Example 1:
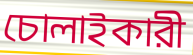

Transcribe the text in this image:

চোলাইকারী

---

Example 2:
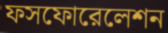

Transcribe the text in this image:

ফসফোরেলেশন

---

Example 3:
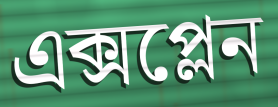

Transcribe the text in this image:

এক্সপ্লেন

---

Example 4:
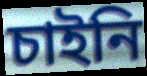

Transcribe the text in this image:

চাইনি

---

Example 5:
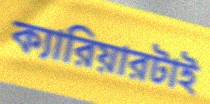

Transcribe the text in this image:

ক্যারিয়ারটাই